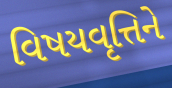
વિષયવૃત્તિને